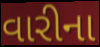
વારીના